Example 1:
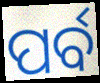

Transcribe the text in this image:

ପର୍ବ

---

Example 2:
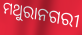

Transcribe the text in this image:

ମଥୁରାନଗରୀ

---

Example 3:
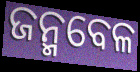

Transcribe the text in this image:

ଜନ୍ମବେଳ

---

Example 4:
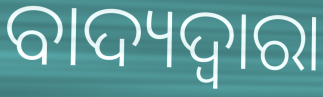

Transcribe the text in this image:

ବାଦ୍ୟଦ୍ୱାରା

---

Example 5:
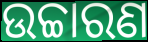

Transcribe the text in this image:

ଉଚ୍ଚାରଣ